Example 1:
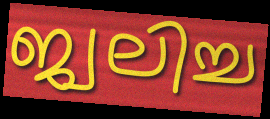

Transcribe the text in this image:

ജ്വലിച്ച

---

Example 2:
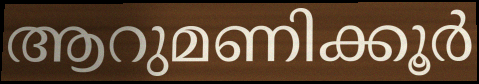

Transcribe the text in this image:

ആറുമണിക്കൂർ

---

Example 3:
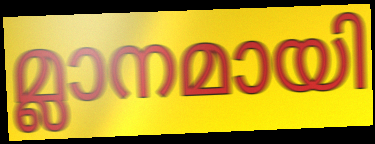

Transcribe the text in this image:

മ്ലാനമായി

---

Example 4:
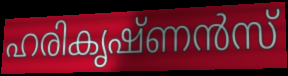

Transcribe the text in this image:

ഹരികൃഷ്ണൻസ്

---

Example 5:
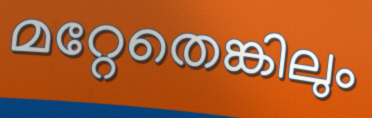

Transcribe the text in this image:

മറ്റേതെങ്കിലും